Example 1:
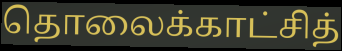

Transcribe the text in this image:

தொலைக்காட்சித்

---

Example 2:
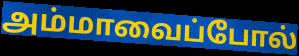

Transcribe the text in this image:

அம்மாவைப்போல்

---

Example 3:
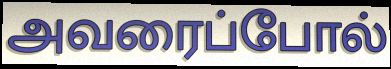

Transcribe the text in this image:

அவரைப்போல்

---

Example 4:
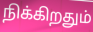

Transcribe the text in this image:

நிக்கிறதும்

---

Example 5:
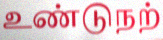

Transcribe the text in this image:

உண்டுநற்